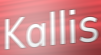
Kallis